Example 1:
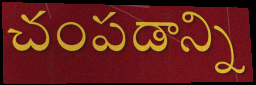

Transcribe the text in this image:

చంపడాన్ని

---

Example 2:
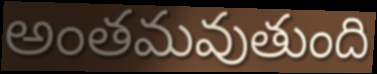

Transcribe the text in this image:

అంతమవుతుంది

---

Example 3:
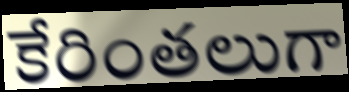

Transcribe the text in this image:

కేరింతలుగా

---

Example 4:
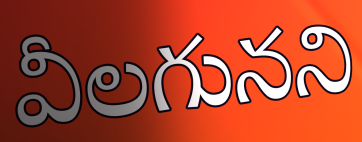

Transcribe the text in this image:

వీలగునని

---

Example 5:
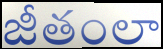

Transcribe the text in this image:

జీతంలా